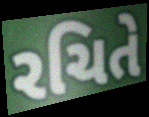
રચિતે